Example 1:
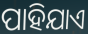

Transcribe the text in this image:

ପାହିଯାଏ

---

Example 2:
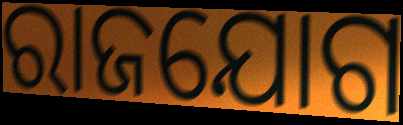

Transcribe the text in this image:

ରାଜଯୋଗ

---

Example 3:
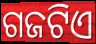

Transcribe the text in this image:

ଗଜଟିଏ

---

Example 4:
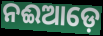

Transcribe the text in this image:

ନଈଆଡ଼େ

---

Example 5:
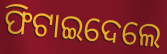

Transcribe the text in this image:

ଫିଟାଇଦେଲେ